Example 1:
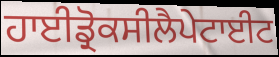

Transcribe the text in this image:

ਹਾਈਡ੍ਰੋਕਸੀਲੈਪੇਟਾਈਟ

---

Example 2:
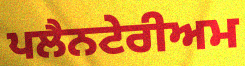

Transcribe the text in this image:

ਪਲੈਨਟੇਰੀਅਮ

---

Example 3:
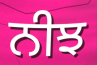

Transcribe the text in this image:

ਨੀਝ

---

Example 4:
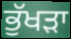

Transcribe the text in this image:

ਭੁੱਖੜਾ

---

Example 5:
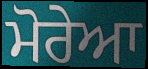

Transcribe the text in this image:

ਮੋਰੇਆ